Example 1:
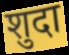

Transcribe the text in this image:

शुदा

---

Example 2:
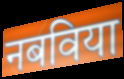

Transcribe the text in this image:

नबविया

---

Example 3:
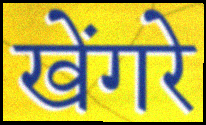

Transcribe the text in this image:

खेंगरे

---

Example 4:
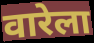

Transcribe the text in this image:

वारेला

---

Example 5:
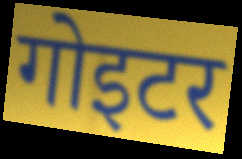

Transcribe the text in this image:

गोइटर